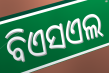
ବିଏସଏଲ